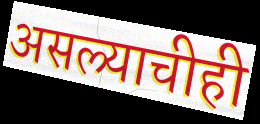
असल्याचीही